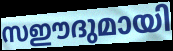
സഈദുമായി